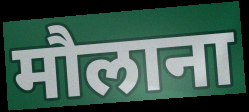
मौलाना